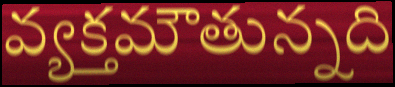
వ్యక్తమౌతున్నది